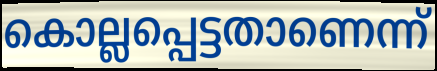
കൊല്ലപ്പെട്ടതാണെന്ന്